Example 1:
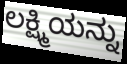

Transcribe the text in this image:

ಲಕ್ಷ್ಮಿಯನ್ನು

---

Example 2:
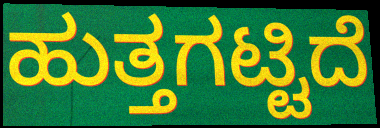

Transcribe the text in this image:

ಹುತ್ತಗಟ್ಟಿದೆ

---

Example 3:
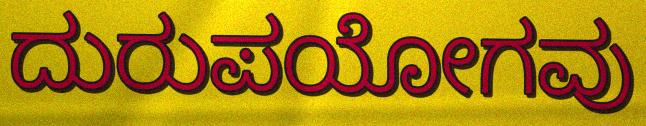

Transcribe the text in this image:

ದುರುಪಯೋಗವು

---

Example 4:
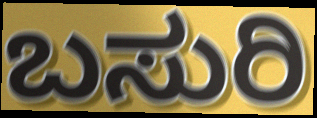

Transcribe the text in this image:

ಬಸುರಿ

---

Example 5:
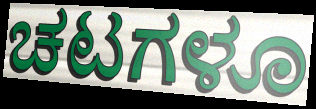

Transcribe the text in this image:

ಚಟಗಳೂ